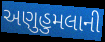
અણુહુમલાની